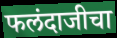
फलंदाजीचा